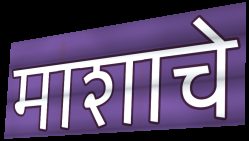
माशाचे